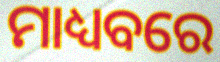
ମାଧ୍ୟବରେ